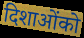
दिशाओंको